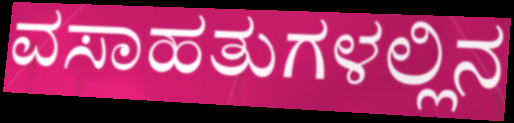
ವಸಾಹತುಗಳಲ್ಲಿನ